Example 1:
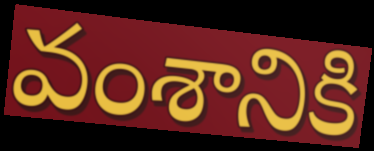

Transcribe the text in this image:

వంశానికి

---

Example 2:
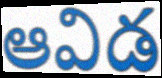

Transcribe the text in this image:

ఆవిడ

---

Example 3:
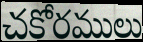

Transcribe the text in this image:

చకోరములు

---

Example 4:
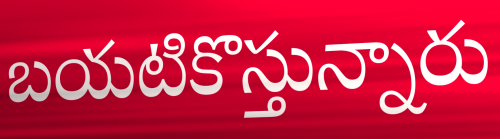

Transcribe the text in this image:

బయటికొస్తున్నారు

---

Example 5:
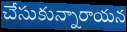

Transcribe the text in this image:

చేసుకున్నారాయన